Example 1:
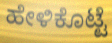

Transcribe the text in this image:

ಹೇಳಿಕೊಟ್ಟೆ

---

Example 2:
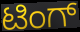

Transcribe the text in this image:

ಟಿಂಗ್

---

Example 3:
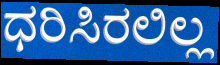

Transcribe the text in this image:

ಧರಿಸಿರಲಿಲ್ಲ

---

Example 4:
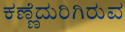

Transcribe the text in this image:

ಕಣ್ಣೆದುರಿಗಿರುವ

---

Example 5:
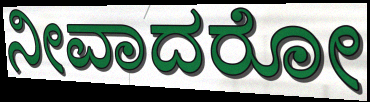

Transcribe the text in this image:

ನೀವಾದರೋ